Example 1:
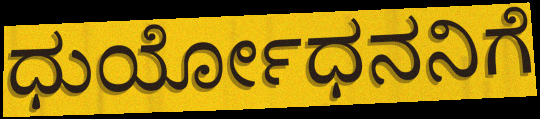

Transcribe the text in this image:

ಧುರ್ಯೋಧನನಿಗೆ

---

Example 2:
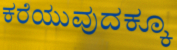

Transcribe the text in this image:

ಕರೆಯುವುದಕ್ಕೂ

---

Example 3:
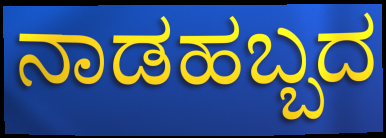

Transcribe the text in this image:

ನಾಡಹಬ್ಬದ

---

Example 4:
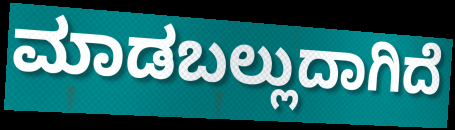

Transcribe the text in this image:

ಮಾಡಬಲ್ಲುದಾಗಿದೆ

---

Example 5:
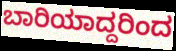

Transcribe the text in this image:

ಬಾರಿಯಾದ್ದರಿಂದ